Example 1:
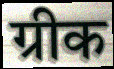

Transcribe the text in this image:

ग्रीक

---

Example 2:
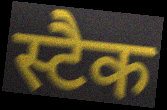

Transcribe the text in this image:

स्टैक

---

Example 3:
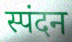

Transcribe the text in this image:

स्पंदन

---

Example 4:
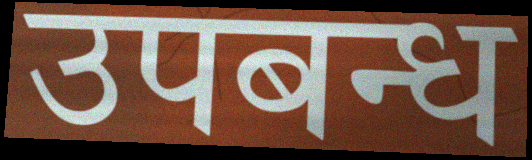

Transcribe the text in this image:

उपबन्ध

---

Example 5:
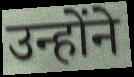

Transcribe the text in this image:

उन्होंने